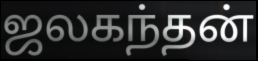
ஜலகந்தன்